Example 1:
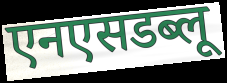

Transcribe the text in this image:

एनएसडब्लू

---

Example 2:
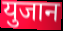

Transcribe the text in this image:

युजान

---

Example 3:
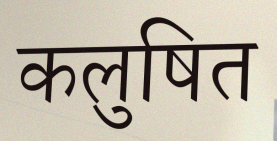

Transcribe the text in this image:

कलुषित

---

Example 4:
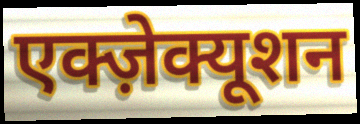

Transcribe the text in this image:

एक्ज़ेक्यूशन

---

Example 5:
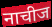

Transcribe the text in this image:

नाचीज